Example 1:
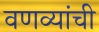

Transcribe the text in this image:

वणव्यांची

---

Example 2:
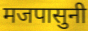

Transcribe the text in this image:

मजपासुनी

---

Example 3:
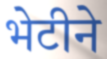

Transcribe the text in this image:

भेटीने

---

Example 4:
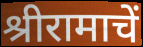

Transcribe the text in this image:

श्रीरामाचें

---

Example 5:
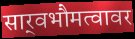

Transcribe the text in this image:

सार्वभौमत्वावर